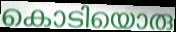
കൊടിയൊരു